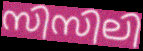
സിസിലി